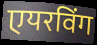
एयरविंग